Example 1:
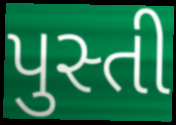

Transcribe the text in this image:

પુસ્તી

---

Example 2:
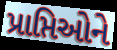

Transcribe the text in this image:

પ્રાપ્તિઓને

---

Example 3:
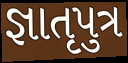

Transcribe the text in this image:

જ્ઞાતૃપુત્ર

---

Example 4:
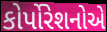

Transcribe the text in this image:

કોર્પોરેશનોએ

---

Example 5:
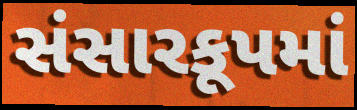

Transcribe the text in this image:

સંસારકૂપમાં